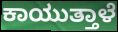
ಕಾಯುತ್ತಾಳೆ